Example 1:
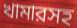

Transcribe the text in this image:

খামারসহ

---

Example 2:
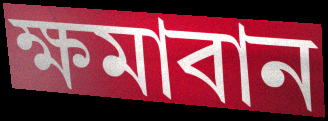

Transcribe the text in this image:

ক্ষমাবান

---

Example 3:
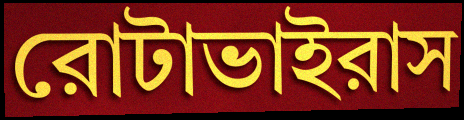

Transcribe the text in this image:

রোটাভাইরাস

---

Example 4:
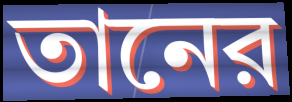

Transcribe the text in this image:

তানের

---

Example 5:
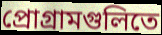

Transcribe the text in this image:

প্রোগ্রামগুলিতে